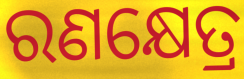
ରଣକ୍ଷେତ୍ର